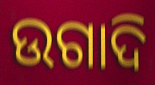
ଉଗାଦି